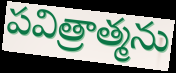
పవిత్రాత్మను